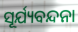
ସୂର୍ଯ୍ୟବନ୍ଦନା